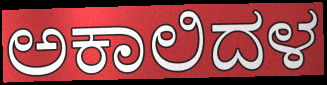
ಅಕಾಲಿದಳ